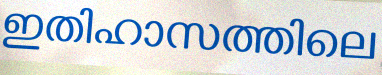
ഇതിഹാസത്തിലെ